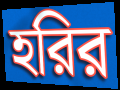
হরির